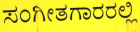
ಸಂಗೀತಗಾರರಲ್ಲಿ